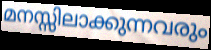
മനസ്സിലാക്കുന്നവരും